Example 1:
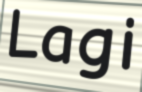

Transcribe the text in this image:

Lagi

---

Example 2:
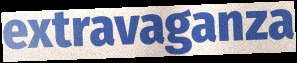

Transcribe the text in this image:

extravaganza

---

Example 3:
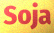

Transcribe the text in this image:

Soja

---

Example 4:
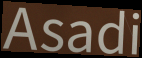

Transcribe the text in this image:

Asadi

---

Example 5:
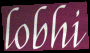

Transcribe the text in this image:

lobhi